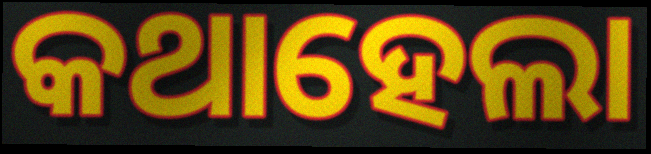
କଥାହେଲା